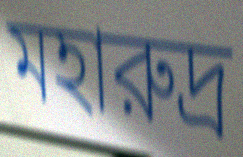
মহারুদ্র